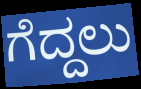
ಗೆದ್ದಲು